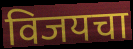
विजयचा